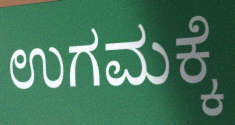
ಉಗಮಕ್ಕೆ